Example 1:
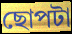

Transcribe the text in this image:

ছোপটা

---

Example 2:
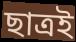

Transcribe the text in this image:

ছাত্রই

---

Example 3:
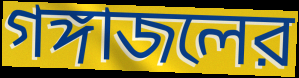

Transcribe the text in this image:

গঙ্গাজলের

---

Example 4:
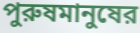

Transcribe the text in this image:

পুরুষমানুষের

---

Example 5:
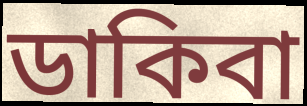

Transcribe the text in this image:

ডাকিবা